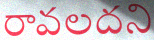
రావలదని